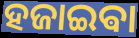
ହଜାଇଵା